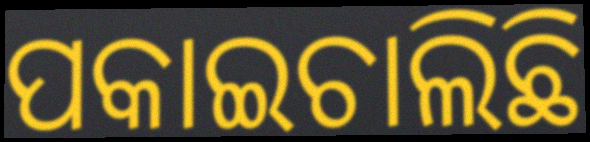
ପକାଇଚାଲିଛି